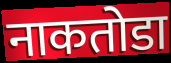
नाकतोडा